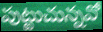
పుట్టుచున్నవో